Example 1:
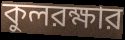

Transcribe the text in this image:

কুলরক্ষার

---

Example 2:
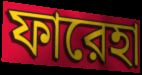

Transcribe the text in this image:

ফারেহা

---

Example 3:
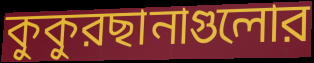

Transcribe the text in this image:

কুকুরছানাগুলোর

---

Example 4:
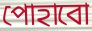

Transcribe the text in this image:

পোহাবো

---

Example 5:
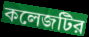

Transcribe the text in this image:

কলেজটির